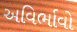
અવિર્ભાવો